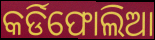
କର୍ଡିଫୋଲିଆ